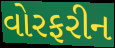
વોરફરીન